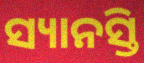
ସ୍ୟାନସ୍ତି